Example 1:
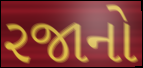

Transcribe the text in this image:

રજાનો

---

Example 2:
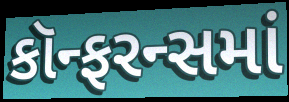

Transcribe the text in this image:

કૉન્ફરન્સમાં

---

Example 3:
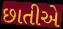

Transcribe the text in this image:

છાતીએ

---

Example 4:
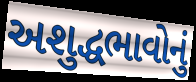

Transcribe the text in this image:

અશુદ્ધભાવોનું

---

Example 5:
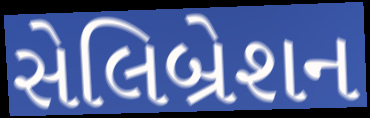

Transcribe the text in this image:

સેલિબ્રેશન